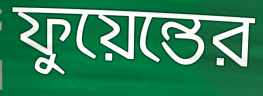
ফুয়েন্তের